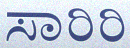
ಸಾರಿರಿ